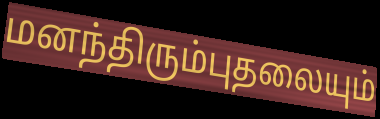
மனந்திரும்புதலையும்